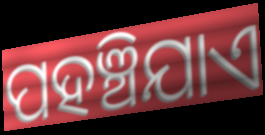
ପହଞ୍ଚିଯାଏ